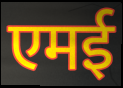
एमई